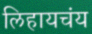
लिहायचंय